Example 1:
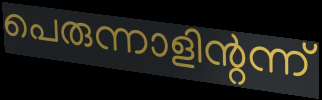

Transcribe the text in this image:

പെരുന്നാളിന്റന്ന്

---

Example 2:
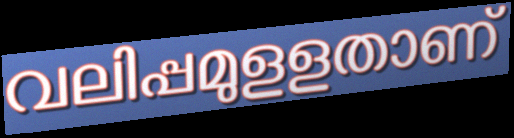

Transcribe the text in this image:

വലിപ്പമുളളതാണ്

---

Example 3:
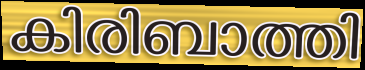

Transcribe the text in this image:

കിരിബാത്തി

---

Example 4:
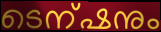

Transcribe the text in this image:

ടെന്ഷനും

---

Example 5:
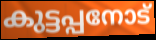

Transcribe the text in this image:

കുട്ടപ്പനോട്